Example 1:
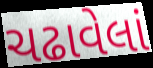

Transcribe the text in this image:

ચઢાવેલાં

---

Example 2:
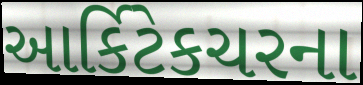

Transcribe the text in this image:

આર્કિટેકચરના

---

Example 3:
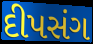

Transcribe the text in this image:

દીપસંગ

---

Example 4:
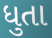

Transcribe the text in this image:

ધુતા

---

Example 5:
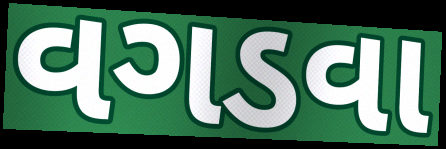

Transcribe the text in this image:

વગડવા